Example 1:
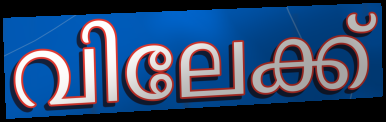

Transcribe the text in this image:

വിലേക്ക്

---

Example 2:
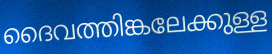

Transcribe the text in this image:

ദൈവത്തിങ്കലേക്കുള്ള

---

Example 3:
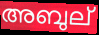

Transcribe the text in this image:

അബുല്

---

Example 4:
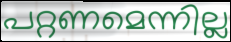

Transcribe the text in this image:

പറ്റണമെന്നില്ല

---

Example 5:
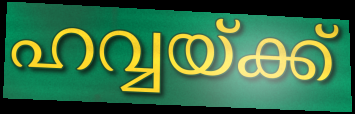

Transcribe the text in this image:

ഹവ്വയ്ക്ക്